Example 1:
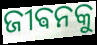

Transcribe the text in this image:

ଜୀଵନକୁ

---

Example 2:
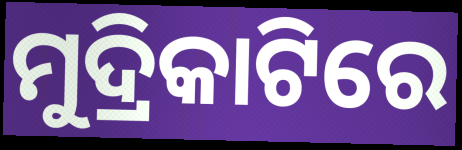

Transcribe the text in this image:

ମୁଦ୍ରିକାଟିରେ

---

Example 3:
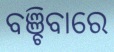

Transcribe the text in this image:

ବଞ୍ଚିବାରେ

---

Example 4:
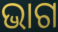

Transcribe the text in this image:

ଭାଗ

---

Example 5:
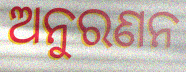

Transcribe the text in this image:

ଅନୁରଣନ